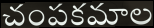
చంపకమాల